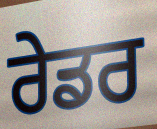
ਰੇਡਰ